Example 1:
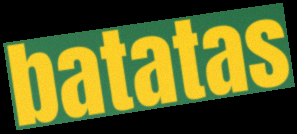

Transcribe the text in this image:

batatas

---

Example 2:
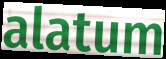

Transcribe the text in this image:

alatum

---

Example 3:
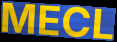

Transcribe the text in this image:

MECL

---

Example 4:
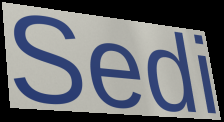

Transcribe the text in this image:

Sedi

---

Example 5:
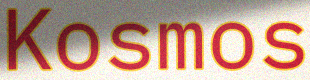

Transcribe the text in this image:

Kosmos